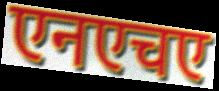
एनएचए